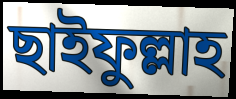
ছাইফুল্লাহ